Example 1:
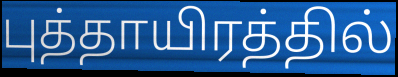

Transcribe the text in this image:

புத்தாயிரத்தில்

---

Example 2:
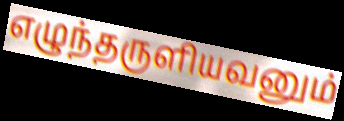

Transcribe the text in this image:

எழுந்தருளியவனும்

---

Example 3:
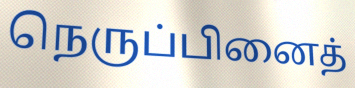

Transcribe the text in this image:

நெருப்பினைத்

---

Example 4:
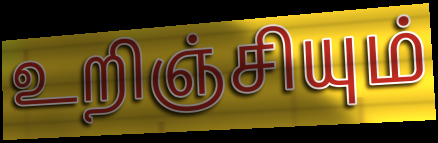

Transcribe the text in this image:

உறிஞ்சியும்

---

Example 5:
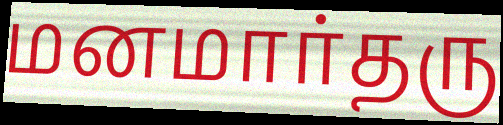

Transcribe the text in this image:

மனமார்தரு